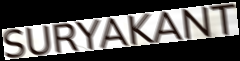
SURYAKANT